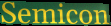
Semicon